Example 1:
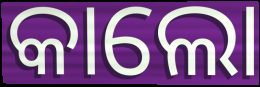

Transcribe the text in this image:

କାଲୋ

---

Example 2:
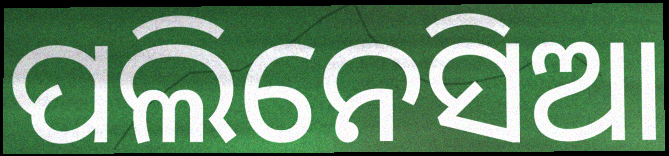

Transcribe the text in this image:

ପଲିନେସିଆ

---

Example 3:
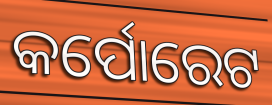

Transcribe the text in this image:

କର୍ପୋରେଟ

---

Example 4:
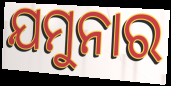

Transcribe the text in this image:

ଯମୁନାର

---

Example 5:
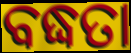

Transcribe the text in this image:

ବଦ୍ଧତା